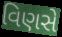
વિણસે